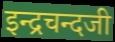
इन्द्रचन्दजी